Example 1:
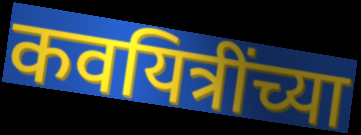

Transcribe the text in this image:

कवयित्रींच्या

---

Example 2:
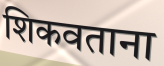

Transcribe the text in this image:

शिकवताना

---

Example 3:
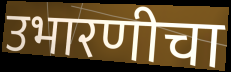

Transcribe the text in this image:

उभारणीचा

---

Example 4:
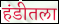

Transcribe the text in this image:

हंडीतला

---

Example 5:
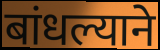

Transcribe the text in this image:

बांधल्याने